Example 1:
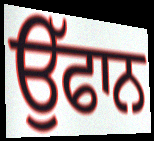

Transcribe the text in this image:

ਉੱਫਾਨ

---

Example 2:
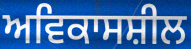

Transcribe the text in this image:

ਅਵਿਕਾਸਸ਼ੀਲ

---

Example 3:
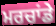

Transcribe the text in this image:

ਮਰਚਾਂਡੇ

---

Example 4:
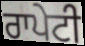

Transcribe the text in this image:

ਰਾਪੇਟੀ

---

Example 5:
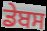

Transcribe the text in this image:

ਡੇਬਸ